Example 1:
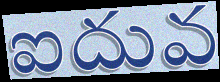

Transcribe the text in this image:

ఐదువ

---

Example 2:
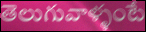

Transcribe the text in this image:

తెలుగువాళ్ళంటే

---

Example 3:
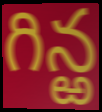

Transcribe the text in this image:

గిన్ఱ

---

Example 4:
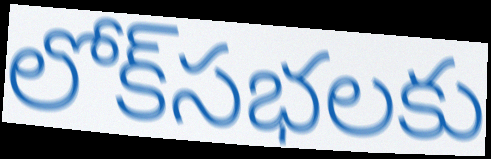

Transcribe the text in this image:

లోక్‌సభలకు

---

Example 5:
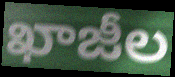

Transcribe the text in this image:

ఖాజీల